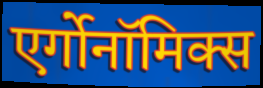
एर्गोनॉमिक्स